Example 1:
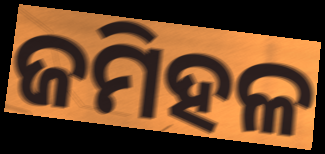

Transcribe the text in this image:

ଜମିହଳ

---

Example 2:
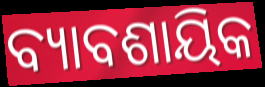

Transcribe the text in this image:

ବ୍ୟାବଶାୟିକ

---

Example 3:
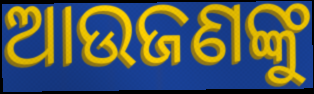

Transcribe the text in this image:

ଆଉଜଣଙ୍କୁ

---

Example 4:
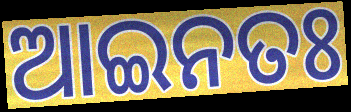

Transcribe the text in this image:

ଆଇନତଃ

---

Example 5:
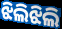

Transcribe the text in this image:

ଝିଲିଝିଲି